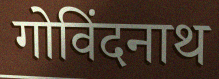
गोविंदनाथ